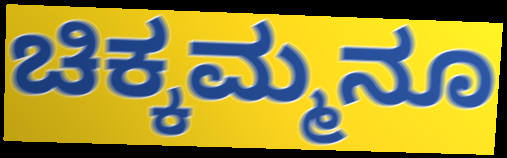
ಚಿಕ್ಕಮ್ಮನೂ